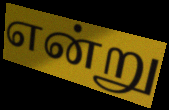
என்று